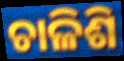
ଚାଳିଶି